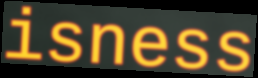
isness